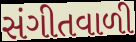
સંગીતવાળી